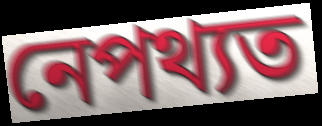
নেপথ্যত